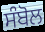
ਸੰਬੋਲ